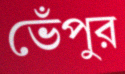
ভেঁপুর